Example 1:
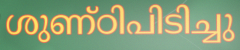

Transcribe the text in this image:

ശുണ്ഠിപിടിച്ചു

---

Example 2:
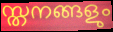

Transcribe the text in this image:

സ്തനങ്ങളും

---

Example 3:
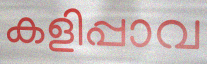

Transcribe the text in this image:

കളിപ്പാവ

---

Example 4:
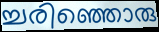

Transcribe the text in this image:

ച്ചരിഞ്ഞൊരു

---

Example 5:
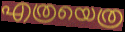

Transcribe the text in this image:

എത്രയെത്ര